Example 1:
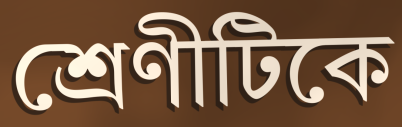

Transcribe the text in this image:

শ্রেণীটিকে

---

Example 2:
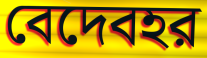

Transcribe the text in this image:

বেদেবহর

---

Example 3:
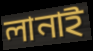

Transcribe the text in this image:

লানাই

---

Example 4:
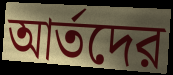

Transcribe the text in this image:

আর্তদের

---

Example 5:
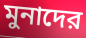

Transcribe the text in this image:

মুনাদের